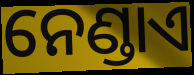
ନେଣ୍ଡାଏ